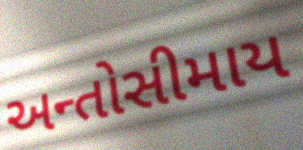
અન્તોસીમાય